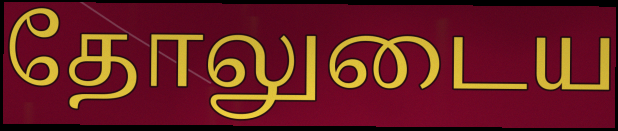
தோலுடைய